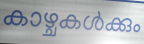
കാഴ്ചകൾക്കും